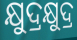
କ୍ଷୁଦ୍ରକ୍ଷୁଦ୍ର